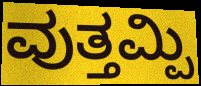
ವುತ್ತಮ್ಪಿ